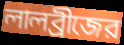
লালব্রীজের